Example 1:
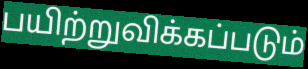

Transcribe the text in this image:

பயிற்றுவிக்கப்படும்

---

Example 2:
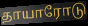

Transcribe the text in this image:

தாயாரோடு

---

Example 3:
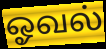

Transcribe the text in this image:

ஓவல்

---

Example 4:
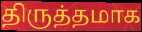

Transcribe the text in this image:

திருத்தமாக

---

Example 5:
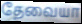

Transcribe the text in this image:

தேவையா